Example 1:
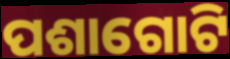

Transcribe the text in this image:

ପଶାଗୋଟି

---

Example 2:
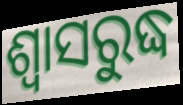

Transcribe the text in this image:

ଶ୍ବାସରୁଦ୍ଧ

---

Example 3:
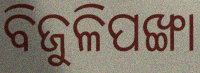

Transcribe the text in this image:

ବିଜୁଳିପଙ୍ଖା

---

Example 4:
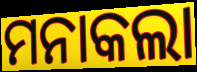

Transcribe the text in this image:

ମନାକଲା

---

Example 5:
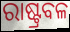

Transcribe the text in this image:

ରାଷ୍ଟ୍ରବଳ